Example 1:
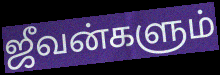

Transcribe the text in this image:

ஜீவன்களும்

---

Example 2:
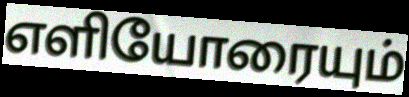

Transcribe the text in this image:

எளியோரையும்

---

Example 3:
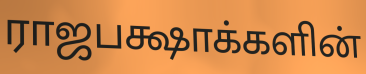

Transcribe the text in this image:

ராஜபக்ஷாக்களின்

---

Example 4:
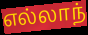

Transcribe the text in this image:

எல்லாந்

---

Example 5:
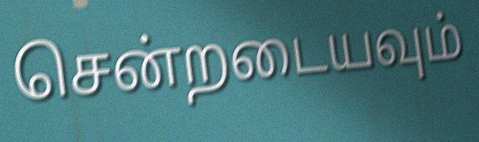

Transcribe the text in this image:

சென்றடையவும்